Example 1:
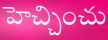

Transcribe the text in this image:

హెచ్చించు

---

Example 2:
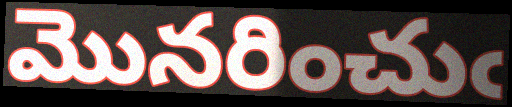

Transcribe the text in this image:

మొనరించుఁ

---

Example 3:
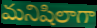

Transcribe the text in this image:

మనిషిలాగా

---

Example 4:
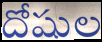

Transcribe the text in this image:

దోషుల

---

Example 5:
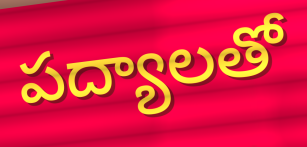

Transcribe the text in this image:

పద్యాలతో